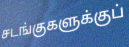
சடங்குகளுக்குப்